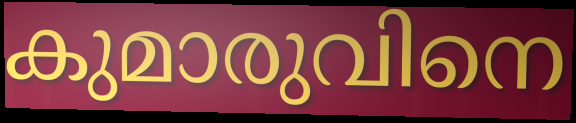
കുമാരുവിനെ